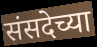
संसदेच्या